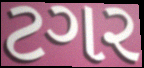
ટગર